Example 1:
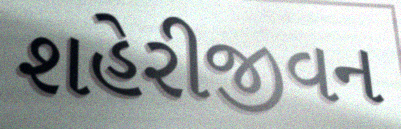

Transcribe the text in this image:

શહેરીજીવન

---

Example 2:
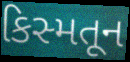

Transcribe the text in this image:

કિસ્મતૂન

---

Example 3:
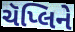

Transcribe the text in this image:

ચૅપ્લિને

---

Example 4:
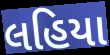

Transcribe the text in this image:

લહિયા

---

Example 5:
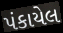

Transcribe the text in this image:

પંકાયેલ